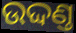
ଉଦ୍ଦଣ୍ତ